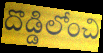
దొడ్డిలోంచి